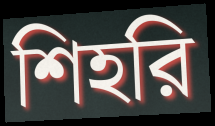
শিহরি